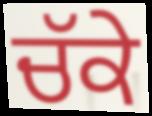
ਚੱਕੇ